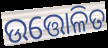
ଉତ୍ତୋଳିତ